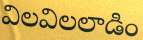
విలవిలలాడిం